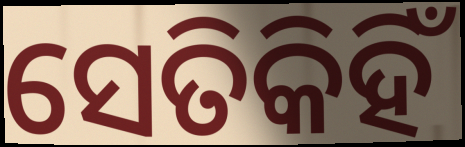
ସେତିକିହିଁ